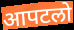
आपटलो